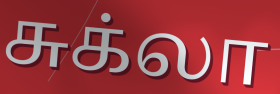
சுக்லா